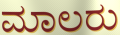
ಮಾಲರು